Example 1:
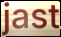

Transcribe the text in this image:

jast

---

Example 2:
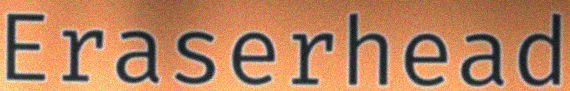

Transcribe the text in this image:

Eraserhead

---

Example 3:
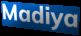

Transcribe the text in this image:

Madiya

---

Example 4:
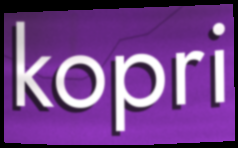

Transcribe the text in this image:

kopri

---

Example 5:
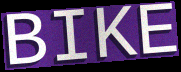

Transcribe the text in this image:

BIKE